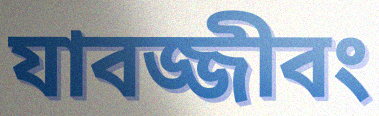
যাবজ্জীবং